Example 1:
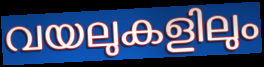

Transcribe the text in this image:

വയലുകളിലും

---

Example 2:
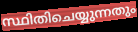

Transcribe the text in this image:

സ്ഥിതിചെയ്യുന്നതും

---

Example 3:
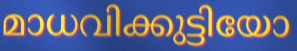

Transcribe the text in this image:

മാധവിക്കുട്ടിയോ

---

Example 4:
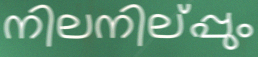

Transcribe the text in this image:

നിലനില്പ്പും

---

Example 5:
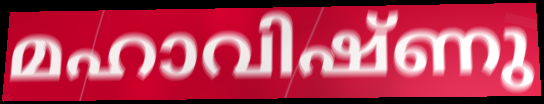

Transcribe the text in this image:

മഹാവിഷ്ണു